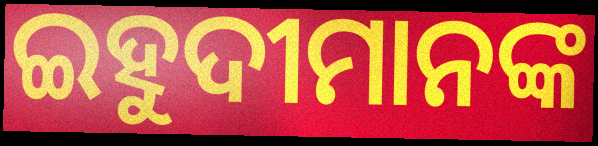
ଇହୁଦୀମାନଙ୍କ